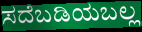
ಸದೆಬಡಿಯಬಲ್ಲ